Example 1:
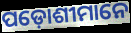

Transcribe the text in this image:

ପଡ଼ୋଶୀମାନେ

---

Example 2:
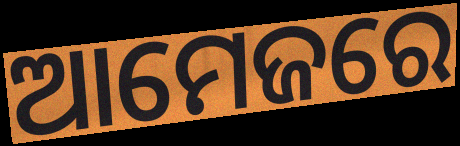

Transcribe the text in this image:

ଆମେଜରେ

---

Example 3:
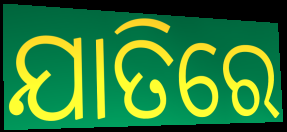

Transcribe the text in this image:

ଯାତିରେ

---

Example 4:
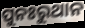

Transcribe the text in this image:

ପୁନଃରୁଥାନ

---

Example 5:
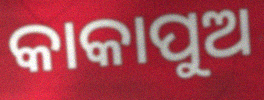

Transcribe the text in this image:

କାକାପୁଅ